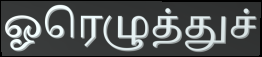
ஓரெழுத்துச்